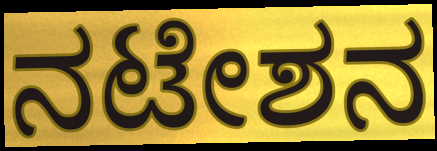
ನಟೇಶನ